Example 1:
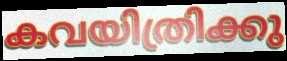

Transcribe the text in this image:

കവയിത്രിക്കു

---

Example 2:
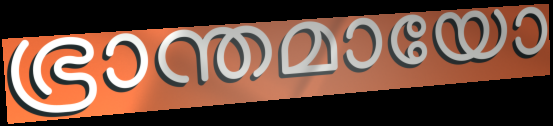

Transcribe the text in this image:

ഭ്രാന്തമായോ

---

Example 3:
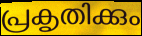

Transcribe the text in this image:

പ്രകൃതിക്കും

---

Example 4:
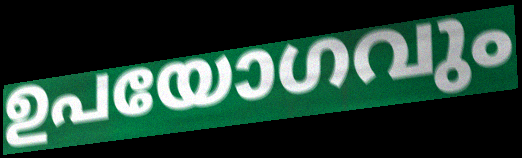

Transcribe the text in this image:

ഉപയോഗവും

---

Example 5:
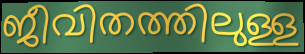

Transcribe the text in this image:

ജീവിതത്തിലുള്ള